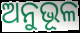
ଅନୁଭୂଳ